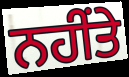
ਨਹੀਂਤੇ